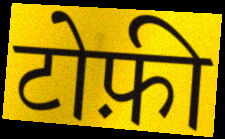
टोफ़ी